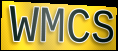
WMCS